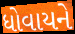
ધોવાયને